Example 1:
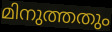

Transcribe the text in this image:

മിനുത്തതും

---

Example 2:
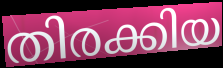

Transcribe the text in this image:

തിരക്കിയ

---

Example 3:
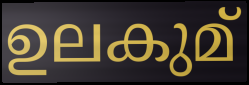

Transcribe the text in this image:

ഉലകുമ്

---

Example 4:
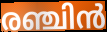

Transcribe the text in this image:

രഞ്ചിൻ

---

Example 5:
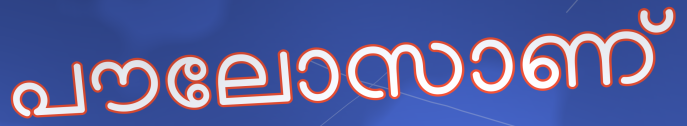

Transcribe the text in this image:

പൗലോസാണ്